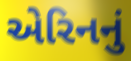
એરિનનું